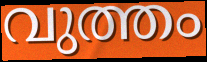
വുത്തം